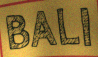
BALI